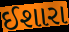
ઈશારા